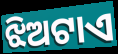
ଝିଅଟାଏ